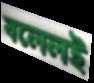
বলেলই